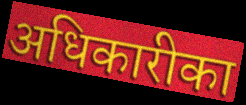
अधिकारीका